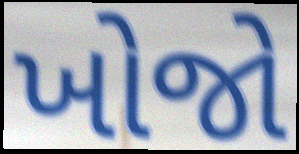
ખોજો